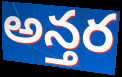
అన్తర